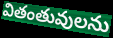
వితంతువులను